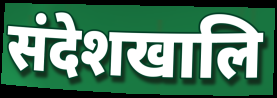
संदेशखालि